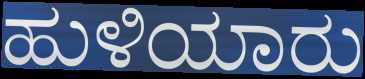
ಹುಳಿಯಾರು